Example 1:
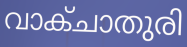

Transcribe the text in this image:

വാക്ചാതുരി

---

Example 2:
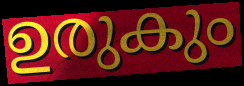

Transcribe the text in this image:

ഉരുകും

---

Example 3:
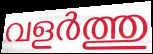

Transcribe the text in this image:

വളർത്തു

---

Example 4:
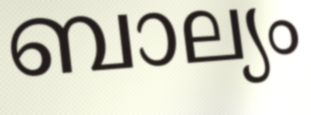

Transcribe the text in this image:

ബാല്യം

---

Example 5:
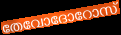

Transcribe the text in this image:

തേവോദോറോസ്